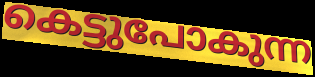
കെട്ടുപോകുന്ന